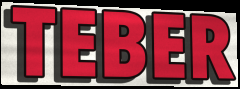
TEBER